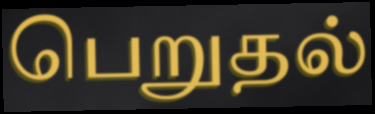
பெறுதல்